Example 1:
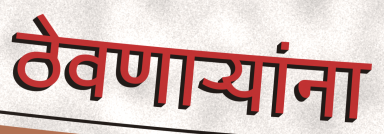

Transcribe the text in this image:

ठेवणार्‍यांना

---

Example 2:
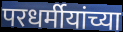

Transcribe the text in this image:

परधर्मीयांच्या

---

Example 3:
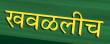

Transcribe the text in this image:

खवळलीच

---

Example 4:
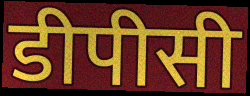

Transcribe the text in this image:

डीपीसी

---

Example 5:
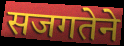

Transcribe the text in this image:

सजगतेने